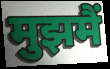
मुझमैं